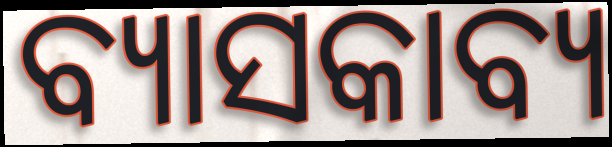
ବ୍ୟାସକାବ୍ୟ